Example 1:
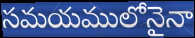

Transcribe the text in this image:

సమయములోనైనా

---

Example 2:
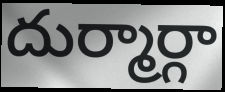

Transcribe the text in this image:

దుర్మార్గా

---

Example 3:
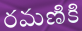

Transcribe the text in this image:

రమణికి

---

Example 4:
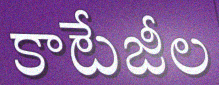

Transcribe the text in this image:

కాటేజీల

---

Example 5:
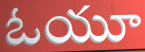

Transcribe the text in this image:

ఓయూ